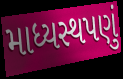
માધ્યસ્થપણું